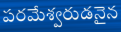
పరమేశ్వరుడనైన